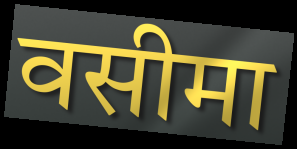
वसीमा